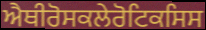
ਐਥੀਰੋਸਕਲੇਰੋਟਿਕਸਿਸ